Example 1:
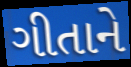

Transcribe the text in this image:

ગીતાને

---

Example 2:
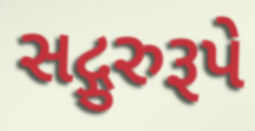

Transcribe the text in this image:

સદ્ગુરુરૂપે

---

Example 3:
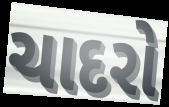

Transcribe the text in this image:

ચાદરો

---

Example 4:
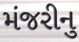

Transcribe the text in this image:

મંજરીનુ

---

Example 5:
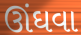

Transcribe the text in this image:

ઊંઘવા